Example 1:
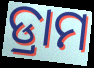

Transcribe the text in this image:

ଡ୍ରାମ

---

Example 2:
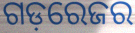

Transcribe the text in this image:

ଗଡ଼ରେଜର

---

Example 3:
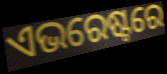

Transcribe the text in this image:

ଏଭରେଷ୍ଟରେ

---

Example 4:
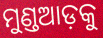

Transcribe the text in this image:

ମୁଣ୍ଡଆଡ଼କୁ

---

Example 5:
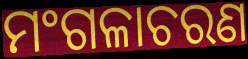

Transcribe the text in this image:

ମଂଗଳାଚରଣ